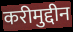
करीमुद्दीन